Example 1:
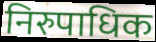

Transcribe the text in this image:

निरुपाधिक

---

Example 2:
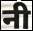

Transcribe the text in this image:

नी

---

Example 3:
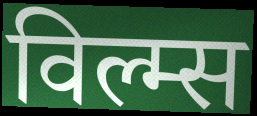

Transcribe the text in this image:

विल्म्स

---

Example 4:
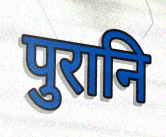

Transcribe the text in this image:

पुरानि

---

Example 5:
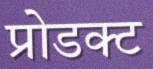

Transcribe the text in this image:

प्रोडक्ट